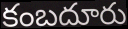
కంబదూరు